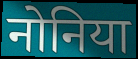
नोनिया